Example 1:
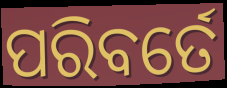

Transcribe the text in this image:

ପରିବର୍ତେ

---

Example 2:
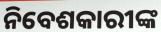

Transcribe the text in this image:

ନିବେଶକାରୀଙ୍କ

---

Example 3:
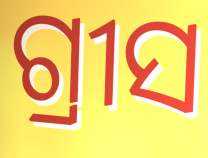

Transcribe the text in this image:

ଗ୍ରୀସ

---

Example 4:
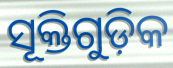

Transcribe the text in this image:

ସୂକ୍ତିଗୁଡ଼ିକ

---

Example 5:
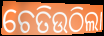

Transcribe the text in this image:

ଚେତିଉଠିଲା